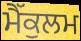
ਮੈੱਕੁਲਮ